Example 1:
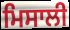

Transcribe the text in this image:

ਮਿਸਾਲੀ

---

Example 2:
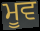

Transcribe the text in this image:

ਮੂਵ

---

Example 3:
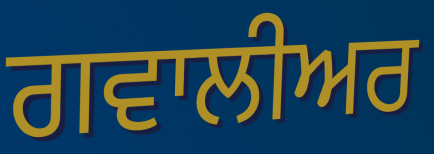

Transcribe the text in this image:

ਗਵਾਲੀਅਰ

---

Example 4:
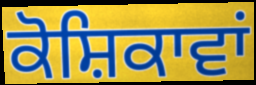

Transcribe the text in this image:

ਕੋਸ਼ਿਕਾਵਾਂ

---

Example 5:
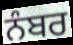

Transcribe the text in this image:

ਨੰਬਰ